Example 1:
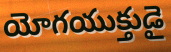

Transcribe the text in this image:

యోగయుక్తుడై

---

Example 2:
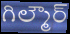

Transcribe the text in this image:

గిల్మౌర్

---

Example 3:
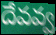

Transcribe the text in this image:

దేవవ్వ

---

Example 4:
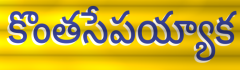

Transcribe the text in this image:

కొంతసేపయ్యాక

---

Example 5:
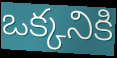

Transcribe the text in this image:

ఒక్కనికి